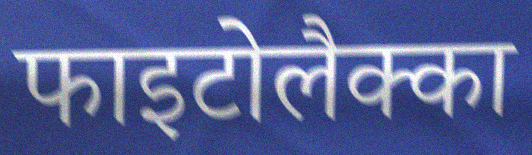
फाइटोलैक्का